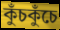
কুঁচকুঁচে